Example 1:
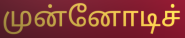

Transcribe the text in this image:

முன்னோடிச்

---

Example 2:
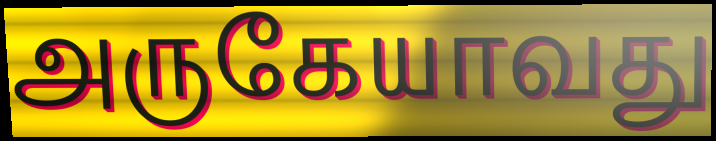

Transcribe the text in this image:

அருகேயாவது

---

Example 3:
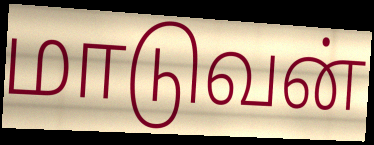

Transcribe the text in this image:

மாடுவன்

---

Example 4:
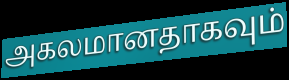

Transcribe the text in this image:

அகலமானதாகவும்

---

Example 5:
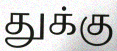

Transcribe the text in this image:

துக்கு